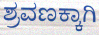
ಶ್ರವಣಕ್ಕಾಗಿ